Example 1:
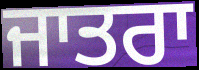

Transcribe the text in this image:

ਜਾਤਰਾ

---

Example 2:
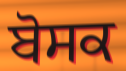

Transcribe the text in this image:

ਬੋਸਕ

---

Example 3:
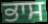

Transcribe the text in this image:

ਭਾਸ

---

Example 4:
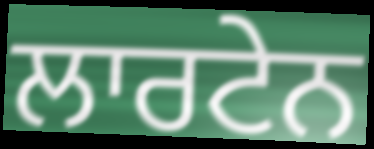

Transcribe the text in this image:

ਲਾਰਟੇਨ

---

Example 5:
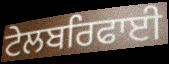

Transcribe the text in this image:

ਟੇਲਬਰਿਫਾਈ